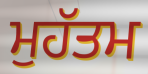
ਮੁਹੱਤਮ